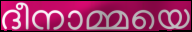
ദീനാമ്മയെ